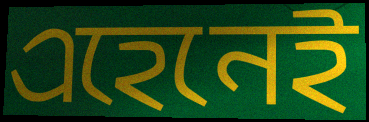
এহেনেই